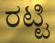
ರಟ್ಟಿ